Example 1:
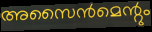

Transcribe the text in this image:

അസൈൻമെന്റും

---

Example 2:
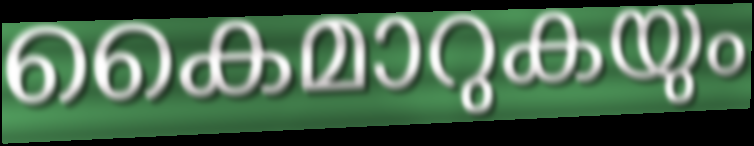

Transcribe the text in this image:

കൈമാറുകയും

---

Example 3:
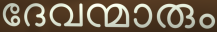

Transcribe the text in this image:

ദേവന്മാരും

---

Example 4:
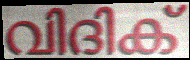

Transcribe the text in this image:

വിദിക്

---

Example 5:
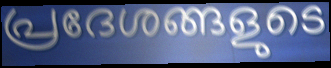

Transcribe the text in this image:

പ്രദേശങ്ങളുടെ